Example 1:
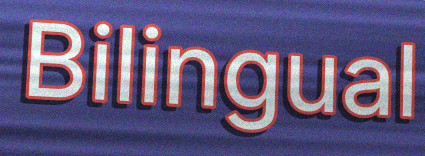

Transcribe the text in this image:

Bilingual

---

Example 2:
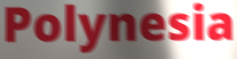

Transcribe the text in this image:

Polynesia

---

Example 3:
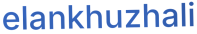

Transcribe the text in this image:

elankhuzhali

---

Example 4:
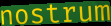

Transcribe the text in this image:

nostrum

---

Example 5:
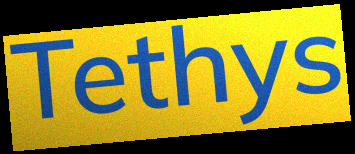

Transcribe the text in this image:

Tethys